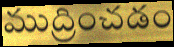
ముద్రించడం